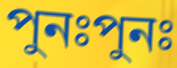
পুনঃপুনঃ